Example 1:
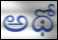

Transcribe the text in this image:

అథో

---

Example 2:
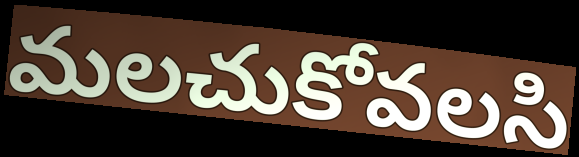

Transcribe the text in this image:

మలచుకోవలసి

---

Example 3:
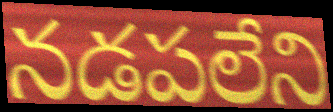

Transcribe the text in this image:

నడపలేని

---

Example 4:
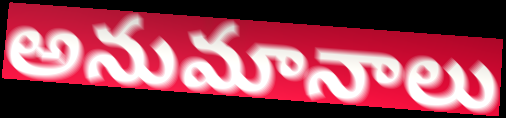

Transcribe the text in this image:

అనుమానాలు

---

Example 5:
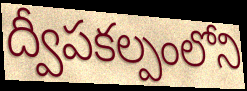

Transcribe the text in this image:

ద్వీపకల్పంలోని